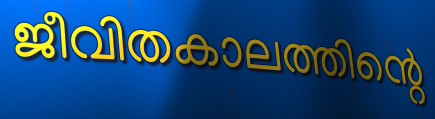
ജീവിതകാലത്തിന്റെ